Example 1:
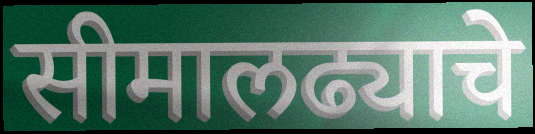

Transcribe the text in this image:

सीमालढ्याचे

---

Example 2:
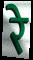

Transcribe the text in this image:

रे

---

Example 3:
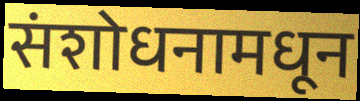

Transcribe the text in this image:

संशोधनामधून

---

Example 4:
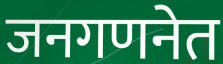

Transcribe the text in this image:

जनगणनेत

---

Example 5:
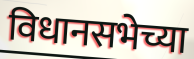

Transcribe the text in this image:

विधानसभेच्या